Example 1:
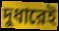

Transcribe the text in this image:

দুধারেই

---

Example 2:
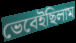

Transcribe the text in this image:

ভেবেইছিলাম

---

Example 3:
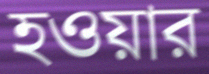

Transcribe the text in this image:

হওয়ার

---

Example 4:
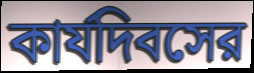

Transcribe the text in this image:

কার্যদিবসের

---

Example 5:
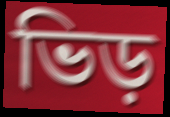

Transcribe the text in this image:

ভিড়